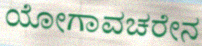
ಯೋಗಾವಚರೇನ